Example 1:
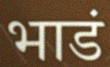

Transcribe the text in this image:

भाडं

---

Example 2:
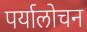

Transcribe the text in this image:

पर्यालोचन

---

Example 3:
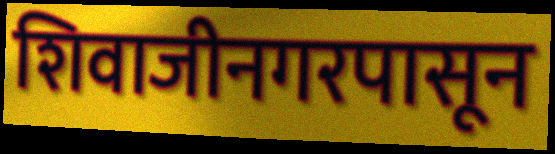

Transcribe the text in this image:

शिवाजीनगरपासून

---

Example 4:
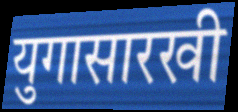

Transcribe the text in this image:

युगासारखी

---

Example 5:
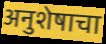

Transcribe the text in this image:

अनुशेषाचा